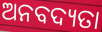
ଅନବଦ୍ୟତା